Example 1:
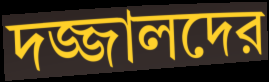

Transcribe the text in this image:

দজ্জালদের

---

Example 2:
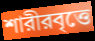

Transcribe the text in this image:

শারীরবৃত্তে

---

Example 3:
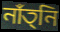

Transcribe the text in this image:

নাঁত্‌নি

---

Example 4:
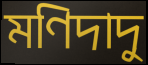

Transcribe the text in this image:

মণিদাদু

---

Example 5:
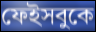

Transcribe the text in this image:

ফেইসবুকে